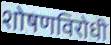
शोषणविरोधी